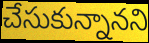
చేసుకున్నానని